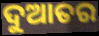
ଦୁଆତର